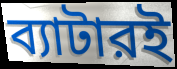
ব্যাটারই